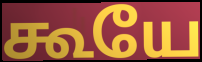
கூயே